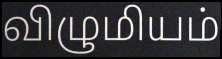
விழுமியம்